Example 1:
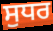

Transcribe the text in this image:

ਸੁਧਰ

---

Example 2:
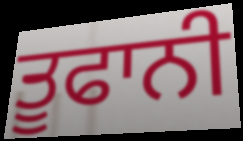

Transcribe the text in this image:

ਤੂਫਾਨੀ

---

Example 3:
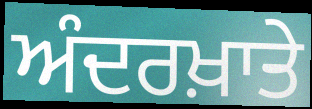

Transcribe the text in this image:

ਅੰਦਰਖ਼ਾਤੇ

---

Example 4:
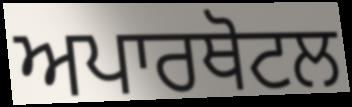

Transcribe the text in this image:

ਅਪਾਰਥੋਟਲ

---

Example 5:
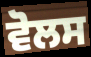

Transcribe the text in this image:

ਵੋਲਸ